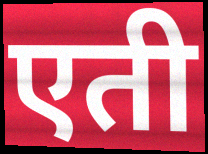
एती